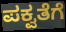
ಪಕ್ವತೆಗೆ